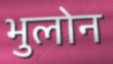
भुलोन